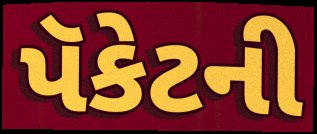
પૅકેટની